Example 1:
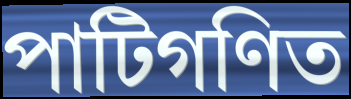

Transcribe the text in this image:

পাটিগণিত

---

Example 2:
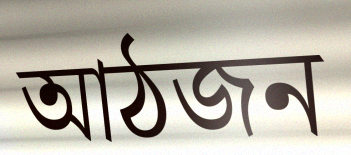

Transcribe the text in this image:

আঠজন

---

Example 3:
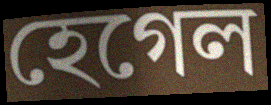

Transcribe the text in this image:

হেগেল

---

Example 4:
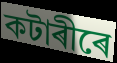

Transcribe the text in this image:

কটাৰীৰে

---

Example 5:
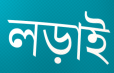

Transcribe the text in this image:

লড়াই